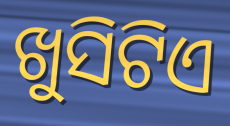
ଖୁସିଟିଏ